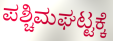
ಪಶ್ಚಿಮಘಟ್ಟಕ್ಕೆ